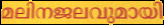
മലിനജലവുമായി